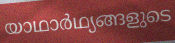
യാഥാർഥ്യങ്ങളുടെ